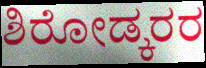
ಶಿರೋಡ್ಕರರ